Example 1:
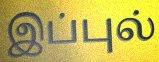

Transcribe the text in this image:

இப்புல்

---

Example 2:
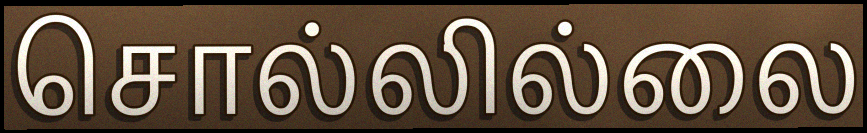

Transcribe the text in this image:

சொல்லில்லை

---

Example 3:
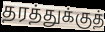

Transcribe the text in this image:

தரத்துக்குத்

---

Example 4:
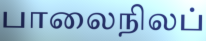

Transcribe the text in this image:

பாலைநிலப்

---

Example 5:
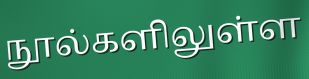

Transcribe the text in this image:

நூல்களிலுள்ள